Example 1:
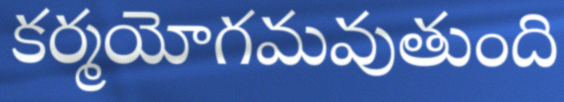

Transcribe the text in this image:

కర్మయోగమవుతుంది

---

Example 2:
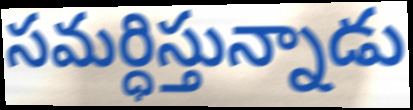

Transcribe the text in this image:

సమర్ధిస్తున్నాడు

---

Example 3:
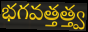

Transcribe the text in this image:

భగవత్తత్త్వ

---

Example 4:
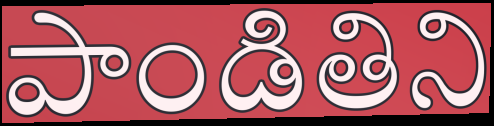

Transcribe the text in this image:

పాండితిని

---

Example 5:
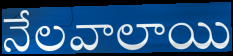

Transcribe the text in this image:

నేలవాలాయి